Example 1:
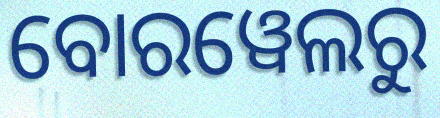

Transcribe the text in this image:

ବୋରୱେଲରୁ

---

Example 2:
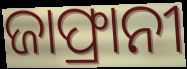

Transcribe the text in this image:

ଜାଫ୍ରାନୀ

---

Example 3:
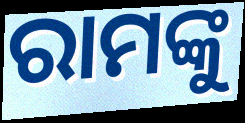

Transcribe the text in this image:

ରାମଙ୍କୁ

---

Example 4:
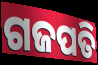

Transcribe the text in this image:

ଗଜପତି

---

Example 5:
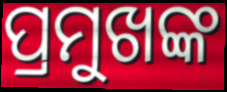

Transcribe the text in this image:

ପ୍ରମୁଖଙ୍କ